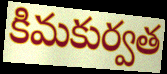
కిమకుర్వత